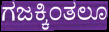
ಗಜಕ್ಕಿಂತಲೂ